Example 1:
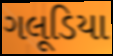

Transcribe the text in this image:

ગલૂડિયા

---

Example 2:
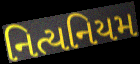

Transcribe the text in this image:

નિત્યનિયમ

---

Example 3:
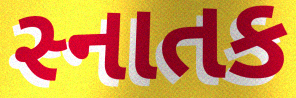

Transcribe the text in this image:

સ્નાતક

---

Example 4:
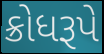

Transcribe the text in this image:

ક્રોધરૂપે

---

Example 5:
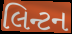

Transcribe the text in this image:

લિન્ટન